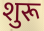
शुरू